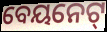
ବେୟନେଟ୍